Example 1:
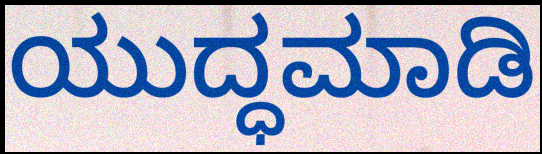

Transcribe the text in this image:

ಯುದ್ಧಮಾಡಿ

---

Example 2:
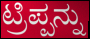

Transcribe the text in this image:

ಟ್ರಿಪ್ಪನ್ನು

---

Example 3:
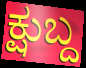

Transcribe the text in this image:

ಕ್ಷುಬ್ದ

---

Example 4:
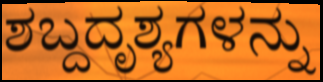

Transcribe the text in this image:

ಶಬ್ದದೃಶ್ಯಗಳನ್ನು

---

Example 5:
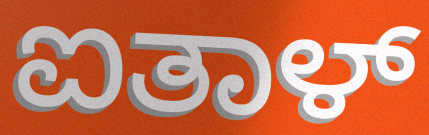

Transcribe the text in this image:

ಐತಾಳ್